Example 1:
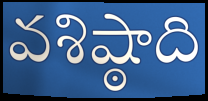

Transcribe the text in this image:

వశిష్ఠాది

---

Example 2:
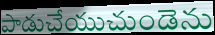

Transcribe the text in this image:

పాడుచేయుచుండెను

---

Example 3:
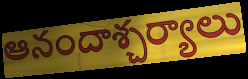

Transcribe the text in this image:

ఆనందాశ్చర్యాలు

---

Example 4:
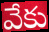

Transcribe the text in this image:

వేకు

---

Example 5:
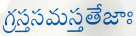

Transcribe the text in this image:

గ్రస్తసమస్తతేజాః